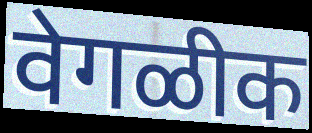
वेगळीक